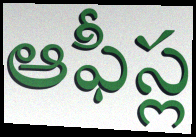
ఆఫీస్ల